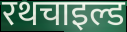
रथचाइल्ड